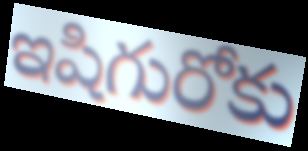
ఇషిగురోకు